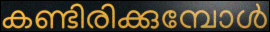
കണ്ടിരിക്കുമ്പോൾ